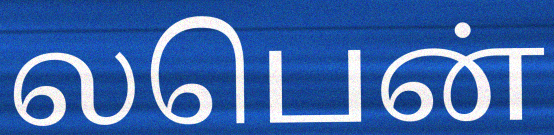
லபென்